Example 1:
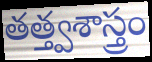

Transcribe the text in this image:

తత్త్వశాస్త్రం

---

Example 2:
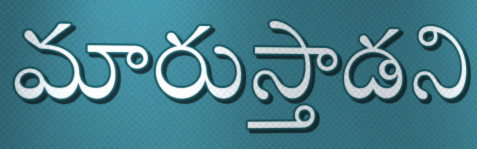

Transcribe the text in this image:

మారుస్తాడని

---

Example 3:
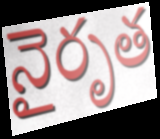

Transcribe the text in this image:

నైరృత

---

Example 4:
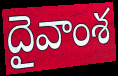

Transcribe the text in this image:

దైవాంశ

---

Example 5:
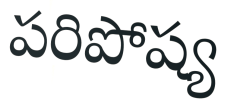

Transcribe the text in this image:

పరిపోష్య